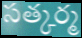
సత్కర్మ